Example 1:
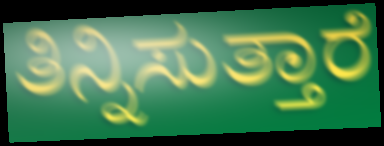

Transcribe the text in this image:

ತಿನ್ನಿಸುತ್ತಾರೆ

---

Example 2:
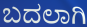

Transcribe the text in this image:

ಬದಲಾಗಿ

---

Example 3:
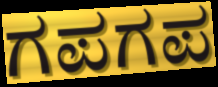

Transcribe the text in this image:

ಗಪಗಪ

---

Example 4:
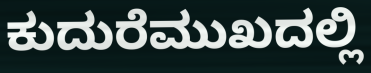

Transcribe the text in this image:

ಕುದುರೆಮುಖದಲ್ಲಿ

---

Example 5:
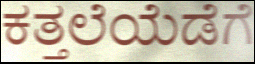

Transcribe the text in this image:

ಕತ್ತಲೆಯೆಡೆಗೆ